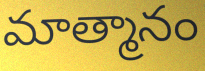
మాత్మానం